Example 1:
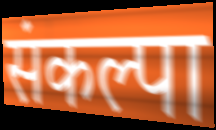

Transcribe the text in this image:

संकल्पा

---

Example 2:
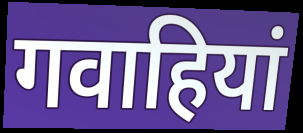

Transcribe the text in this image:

गवाहियां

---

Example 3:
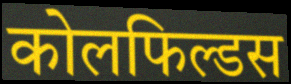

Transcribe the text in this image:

कोलफिल्डस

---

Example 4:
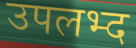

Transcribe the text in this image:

उपलभ्द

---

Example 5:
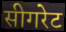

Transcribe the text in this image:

सीगरेट